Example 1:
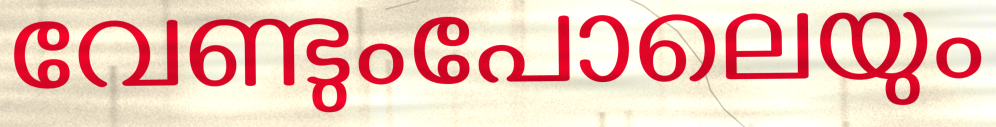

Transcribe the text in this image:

വേണ്ടുംപോലെയും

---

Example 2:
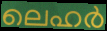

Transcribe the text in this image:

ലെഹർ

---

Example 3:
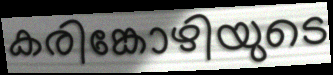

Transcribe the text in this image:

കരിങ്കോഴിയുടെ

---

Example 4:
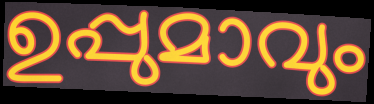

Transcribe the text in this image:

ഉപ്പുമാവും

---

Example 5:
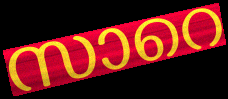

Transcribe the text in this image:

സാറെ